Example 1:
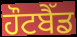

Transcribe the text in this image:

ਹੌਟਬੈੱਡ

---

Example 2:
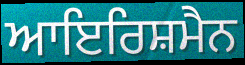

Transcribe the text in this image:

ਆਇਰਿਸ਼ਮੈਨ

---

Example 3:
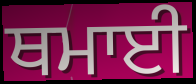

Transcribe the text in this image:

ਥਮਾਈ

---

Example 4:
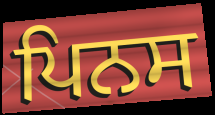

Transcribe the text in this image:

ਪਿਨਸ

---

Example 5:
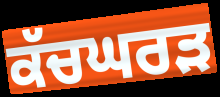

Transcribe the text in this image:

ਕੱਚਘਰੜ